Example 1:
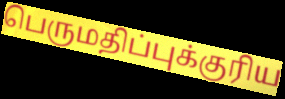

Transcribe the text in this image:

பெருமதிப்புக்குரிய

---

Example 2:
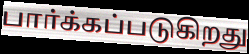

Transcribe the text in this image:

பார்க்கப்படுகிறது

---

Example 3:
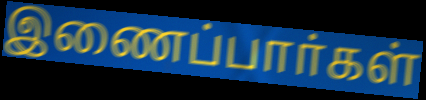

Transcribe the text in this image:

இணைப்பார்கள்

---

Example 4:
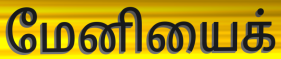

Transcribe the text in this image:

மேனியைக்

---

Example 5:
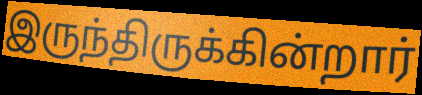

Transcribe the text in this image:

இருந்திருக்கின்றார்